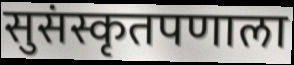
सुसंस्कृतपणाला